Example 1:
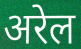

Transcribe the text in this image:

अरेल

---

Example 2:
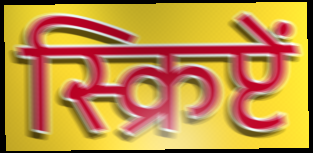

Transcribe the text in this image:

स्क्रिप्टें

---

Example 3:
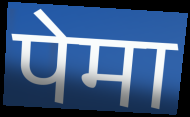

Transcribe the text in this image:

पेमा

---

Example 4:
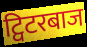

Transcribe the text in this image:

ट्विटरबाज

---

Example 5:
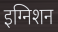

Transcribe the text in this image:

इग्निशन